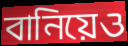
বানিয়েও